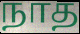
நாத